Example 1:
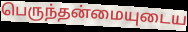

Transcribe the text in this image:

பெருந்தன்மையுடைய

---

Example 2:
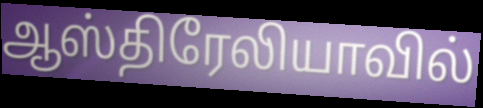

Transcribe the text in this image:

ஆஸ்திரேலியாவில்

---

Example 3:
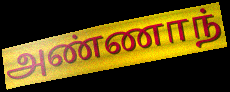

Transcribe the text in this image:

அண்ணாந்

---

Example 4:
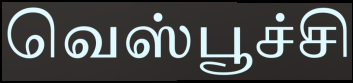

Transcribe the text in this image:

வெஸ்பூச்சி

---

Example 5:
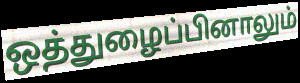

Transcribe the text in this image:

ஒத்துழைப்பினாலும்